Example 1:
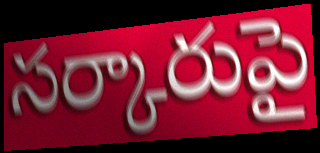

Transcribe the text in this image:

సర్కారుపై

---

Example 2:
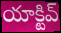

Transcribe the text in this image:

యాక్టివ్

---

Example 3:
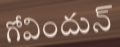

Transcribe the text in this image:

గోవిందున్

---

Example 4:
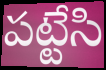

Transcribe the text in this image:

పట్టేసి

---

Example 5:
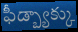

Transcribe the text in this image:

ఫీడ్బ్యాక్కు